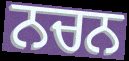
ਨਚਨ